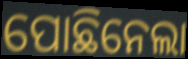
ପୋଛିନେଲା